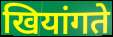
खियांगते